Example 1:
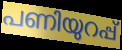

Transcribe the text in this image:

പണിയുറപ്പ്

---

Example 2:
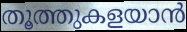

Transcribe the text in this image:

തൂത്തുകളയാൻ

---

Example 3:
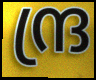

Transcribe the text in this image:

ന്ദ്ര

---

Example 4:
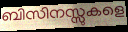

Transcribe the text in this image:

ബിസിനസ്സുകളെ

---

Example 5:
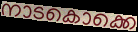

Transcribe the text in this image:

നാടകൊക്കെ